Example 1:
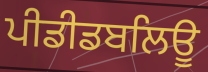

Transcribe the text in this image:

ਪੀਡੀਡਬਲਿਊ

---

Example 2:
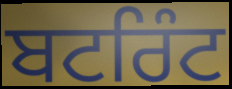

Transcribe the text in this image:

ਬਟਰਿੰਟ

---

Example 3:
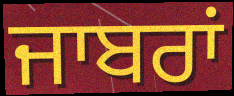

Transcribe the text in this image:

ਜਾਬਰਾਂ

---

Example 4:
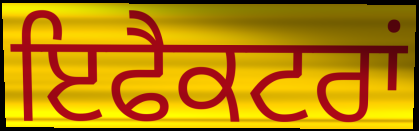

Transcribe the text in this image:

ਇਫੈਕਟਰਾਂ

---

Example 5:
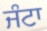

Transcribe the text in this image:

ਜੰਟਾ